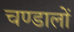
चण्डालों